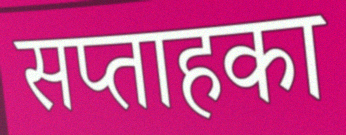
सप्ताहका